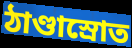
ঠাণ্ডাস্রোত